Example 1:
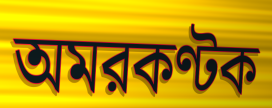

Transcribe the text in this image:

অমরকণ্টক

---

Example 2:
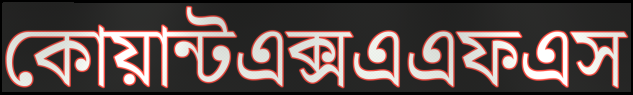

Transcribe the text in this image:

কোয়ান্টএক্সএএফএস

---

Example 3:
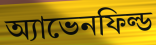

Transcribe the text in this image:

অ্যাভেনফিল্ড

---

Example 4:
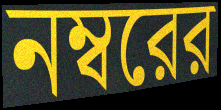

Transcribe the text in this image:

নম্বরের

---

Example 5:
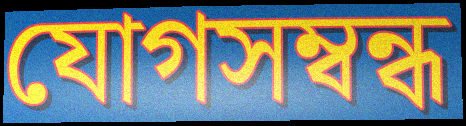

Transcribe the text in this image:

যোগসম্বন্ধ